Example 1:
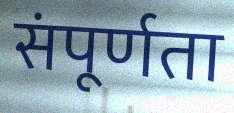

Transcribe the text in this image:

संपूर्णता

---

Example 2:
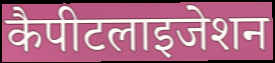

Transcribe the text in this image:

कैपीटलाइजेशन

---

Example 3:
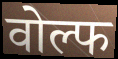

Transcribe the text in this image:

वोल्फ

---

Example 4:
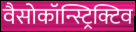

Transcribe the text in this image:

वैसोकॉन्स्ट्रिक्टिव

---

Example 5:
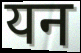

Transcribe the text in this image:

यन